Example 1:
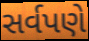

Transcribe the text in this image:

સર્વપણે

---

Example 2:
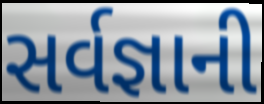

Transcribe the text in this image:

સર્વજ્ઞાની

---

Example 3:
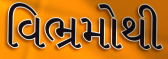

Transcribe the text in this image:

વિભ્રમોથી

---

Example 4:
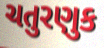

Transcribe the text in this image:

ચતુરણુક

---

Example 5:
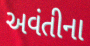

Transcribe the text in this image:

અવંતીના